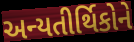
અન્યતીર્થિકોને